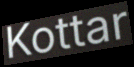
Kottar